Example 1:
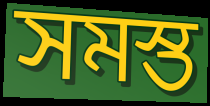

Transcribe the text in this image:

সমস্ত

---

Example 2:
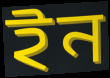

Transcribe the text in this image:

ইন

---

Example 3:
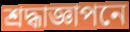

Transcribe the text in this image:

শ্রদ্ধাজ্ঞাপনে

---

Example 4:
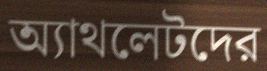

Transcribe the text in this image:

অ্যাথলেটদের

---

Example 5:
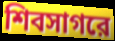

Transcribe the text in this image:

শিবসাগরে